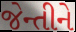
જેન્તીને